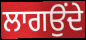
ਲਾਗਉਂਦੇ